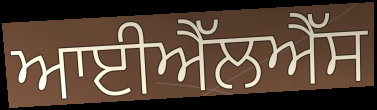
ਆਈਐੱਲਐੱਸ